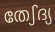
തേഽദ്യ